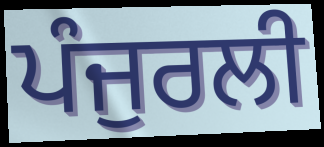
ਪੰਜੁਰਲੀ